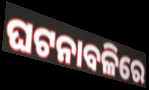
ଘଟନାବଳିରେ